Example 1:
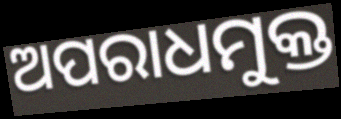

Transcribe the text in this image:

ଅପରାଧମୁକ୍ତ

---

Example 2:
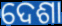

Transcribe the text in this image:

ଦେଶା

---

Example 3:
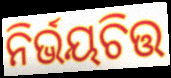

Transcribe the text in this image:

ନିର୍ଭୟଚିତ୍ତ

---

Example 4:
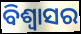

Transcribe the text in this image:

ବିଶ୍ବାସର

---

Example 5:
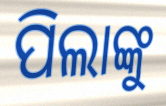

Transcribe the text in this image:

ପିଲାଙ୍କୁ